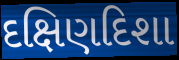
દક્ષિણદિશા